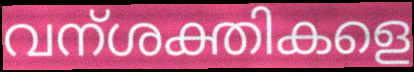
വന്ശക്തികളെ